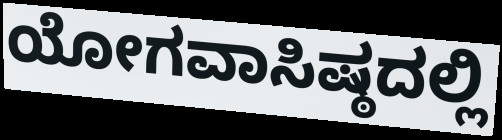
ಯೋಗವಾಸಿಷ್ಠದಲ್ಲಿ